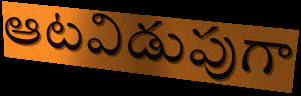
ఆటవిడుపుగా